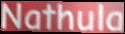
Nathula